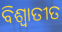
ବିଶ୍ଵାତୀତ